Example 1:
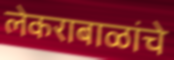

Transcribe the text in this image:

लेकराबाळांचे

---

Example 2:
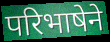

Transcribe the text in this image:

परिभाषेने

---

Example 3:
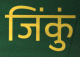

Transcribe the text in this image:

जिंकुं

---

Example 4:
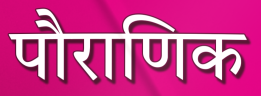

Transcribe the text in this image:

पौराणिक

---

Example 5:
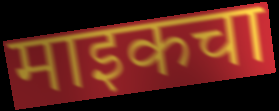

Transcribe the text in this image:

माइकचा